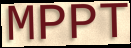
MPPT